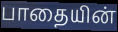
பாதையின்